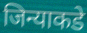
जिन्याकडे